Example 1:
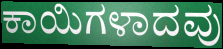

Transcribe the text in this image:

ಕಾಯಿಗಳಾದವು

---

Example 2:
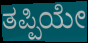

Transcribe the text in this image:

ತಪ್ಪಿಯೇ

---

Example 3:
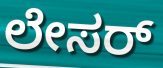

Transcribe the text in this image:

ಲೇಸರ್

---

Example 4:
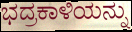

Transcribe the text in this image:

ಭದ್ರಕಾಳಿಯನ್ನು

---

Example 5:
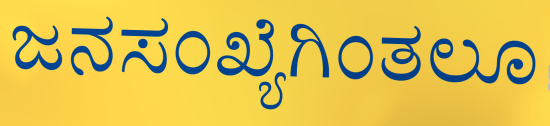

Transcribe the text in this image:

ಜನಸಂಖ್ಯೆಗಿಂತಲೂ